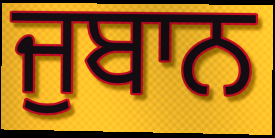
ਜੁਬਾਨ